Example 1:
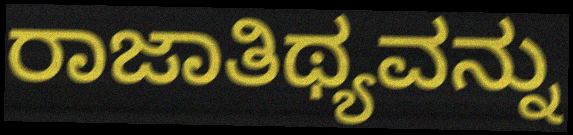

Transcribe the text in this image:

ರಾಜಾತಿಥ್ಯವನ್ನು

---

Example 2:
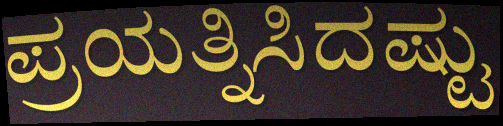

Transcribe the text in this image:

ಪ್ರಯತ್ನಿಸಿದಷ್ಟು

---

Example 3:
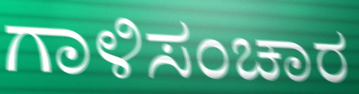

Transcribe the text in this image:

ಗಾಳಿಸಂಚಾರ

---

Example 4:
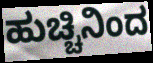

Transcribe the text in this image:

ಹುಚ್ಚಿನಿಂದ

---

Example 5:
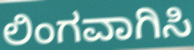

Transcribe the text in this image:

ಲಿಂಗವಾಗಿಸಿ